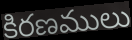
కిరణములు